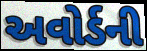
અવોર્ડની